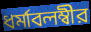
ধর্মাবলম্বীর